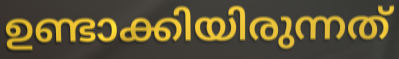
ഉണ്ടാക്കിയിരുന്നത്